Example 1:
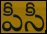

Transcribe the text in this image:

పీసీ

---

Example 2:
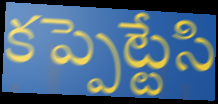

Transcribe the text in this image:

కప్పెట్టేసి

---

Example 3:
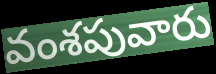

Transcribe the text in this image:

వంశపువారు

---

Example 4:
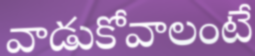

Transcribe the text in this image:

వాడుకోవాలంటే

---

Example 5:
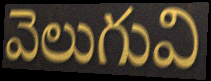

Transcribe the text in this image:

వెలుగువి